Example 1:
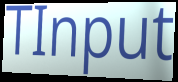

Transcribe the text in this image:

TInput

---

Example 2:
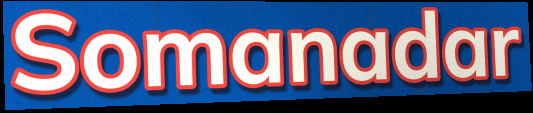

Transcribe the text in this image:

Somanadar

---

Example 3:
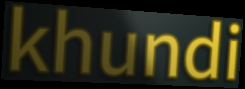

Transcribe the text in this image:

khundi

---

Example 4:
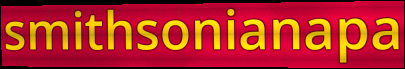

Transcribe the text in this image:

smithsonianapa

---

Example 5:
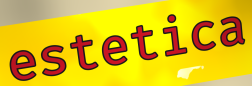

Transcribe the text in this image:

estetica